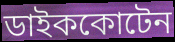
ডাইককোটেন